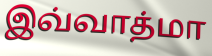
இவ்வாத்மா